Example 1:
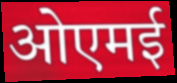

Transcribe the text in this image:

ओएमई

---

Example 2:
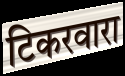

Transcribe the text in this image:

टिकरवारा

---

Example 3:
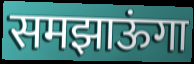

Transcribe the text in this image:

समझाऊंगा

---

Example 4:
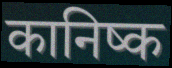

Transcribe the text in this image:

कानिष्क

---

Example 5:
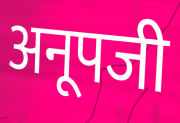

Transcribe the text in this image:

अनूपजी